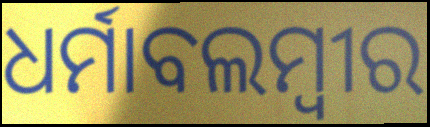
ଧର୍ମାବଲମ୍ବୀର